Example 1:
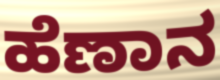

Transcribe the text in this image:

ಹೆಣಾನ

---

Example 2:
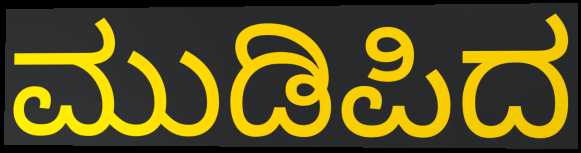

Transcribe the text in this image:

ಮುಡಿಪಿದ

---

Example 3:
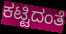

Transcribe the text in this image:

ಕಟ್ಟಿದಂತೆ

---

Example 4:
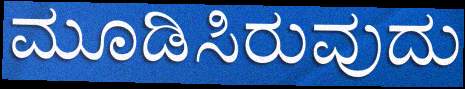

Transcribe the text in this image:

ಮೂಡಿಸಿರುವುದು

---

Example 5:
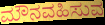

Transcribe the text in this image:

ಮೌನವಹಿಸುವ